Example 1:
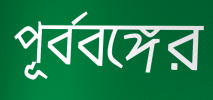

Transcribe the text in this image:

পূর্ববঙ্গের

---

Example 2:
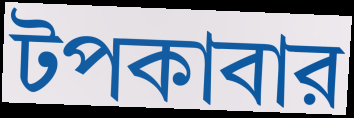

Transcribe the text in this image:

টপকাবার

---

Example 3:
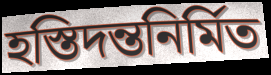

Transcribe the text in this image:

হস্তিদন্তনির্মিত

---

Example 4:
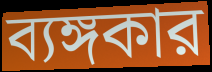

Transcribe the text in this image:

ব্যঙ্গকার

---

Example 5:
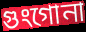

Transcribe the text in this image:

গুংগোনা